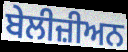
ਬੇਲੀਜ਼ੀਅਨ